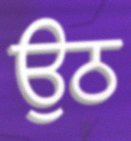
ਉਠ